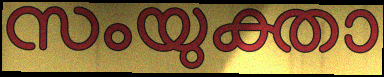
സംയുക്താ